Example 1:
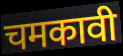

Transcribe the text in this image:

चमकावी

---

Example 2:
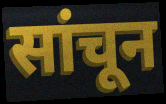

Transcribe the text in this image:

सांचून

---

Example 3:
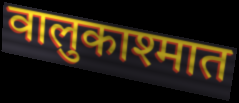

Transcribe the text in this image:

वालुकाश्मात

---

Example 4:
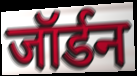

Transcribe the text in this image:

जॉर्डन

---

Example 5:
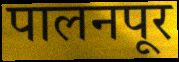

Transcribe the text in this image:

पालनपूर